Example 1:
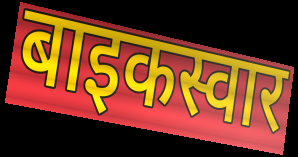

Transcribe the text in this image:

बाइकस्वार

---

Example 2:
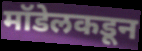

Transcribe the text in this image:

मॉडेलकडून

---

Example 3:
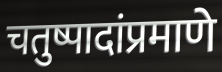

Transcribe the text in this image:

चतुष्पादांप्रमाणे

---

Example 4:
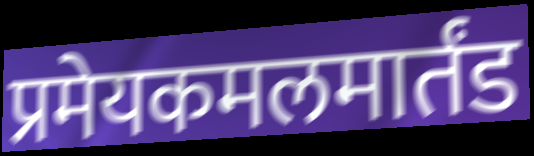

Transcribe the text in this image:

प्रमेयकमलमार्तंड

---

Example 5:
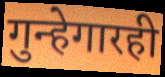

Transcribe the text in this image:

गुन्हेगारही